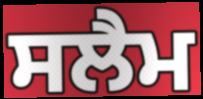
ਸਲੈਮ